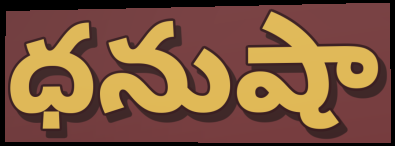
ధనుషా